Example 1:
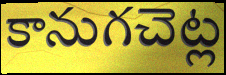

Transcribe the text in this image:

కానుగచెట్ల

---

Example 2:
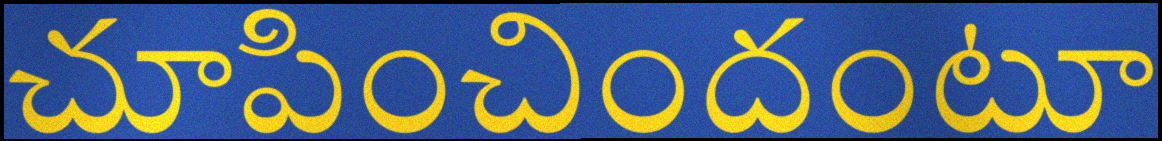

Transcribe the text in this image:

చూపించిందంటూ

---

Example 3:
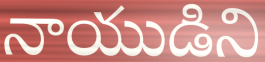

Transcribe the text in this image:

నాయుడిని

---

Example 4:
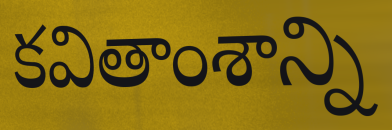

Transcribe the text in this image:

కవితాంశాన్ని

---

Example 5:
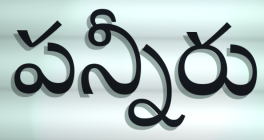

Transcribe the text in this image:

పన్నీరు